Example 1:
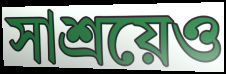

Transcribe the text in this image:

সাশ্রয়েও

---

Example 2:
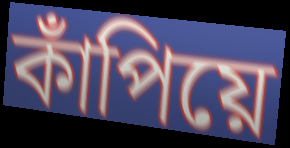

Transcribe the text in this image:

কাঁপিয়ে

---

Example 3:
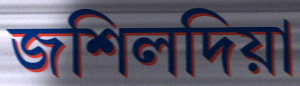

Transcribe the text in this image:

জশিলদিয়া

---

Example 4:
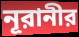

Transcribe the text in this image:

নূরানীর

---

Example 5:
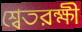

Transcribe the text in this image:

শ্বেতরক্ষী